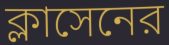
ক্লাসেনের